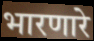
भारणारे